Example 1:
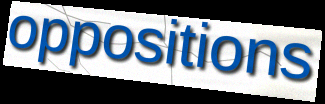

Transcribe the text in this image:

oppositions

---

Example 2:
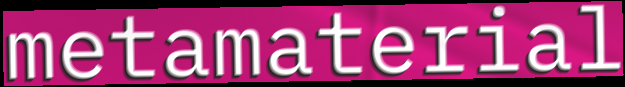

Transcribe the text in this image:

metamaterial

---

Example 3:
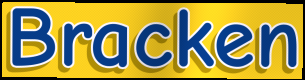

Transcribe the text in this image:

Bracken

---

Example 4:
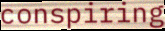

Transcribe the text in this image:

conspiring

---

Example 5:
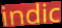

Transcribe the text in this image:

indic